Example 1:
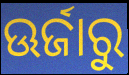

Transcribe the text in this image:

ଊର୍ଜାରୁ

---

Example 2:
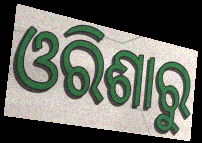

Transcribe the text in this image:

ଓରିଶାରୁ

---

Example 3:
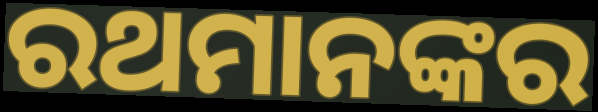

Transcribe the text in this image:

ରଥମାନଙ୍କର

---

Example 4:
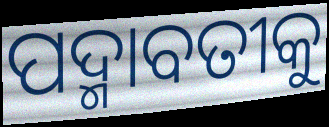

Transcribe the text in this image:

ପଦ୍ମାବତୀକୁ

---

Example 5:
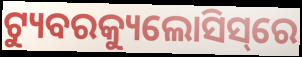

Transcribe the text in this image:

ଟ୍ୟୁବରକ୍ୟୁଲୋସିସ୍‌ରେ